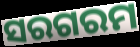
ସରଗରମ